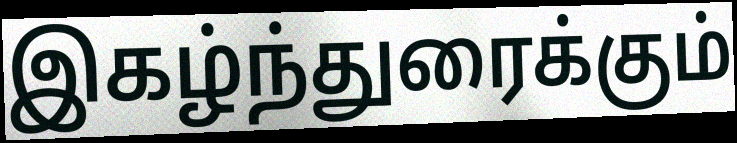
இகழ்ந்துரைக்கும்